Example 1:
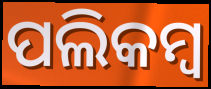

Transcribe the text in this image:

ପଲିକମ୍ବ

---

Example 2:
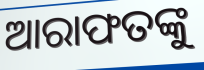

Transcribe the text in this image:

ଆରାଫତଙ୍କୁ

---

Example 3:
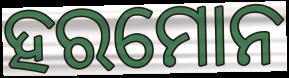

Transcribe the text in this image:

ହରମୋନ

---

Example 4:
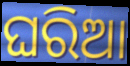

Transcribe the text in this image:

ଘରିଆ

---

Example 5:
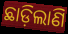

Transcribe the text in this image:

ଛାଡ଼ିଲାଣି